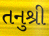
તનુશ્રી